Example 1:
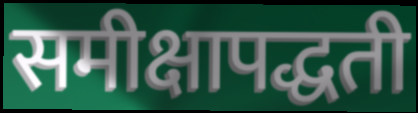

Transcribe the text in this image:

समीक्षापद्धती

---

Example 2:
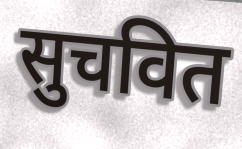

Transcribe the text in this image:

सुचवित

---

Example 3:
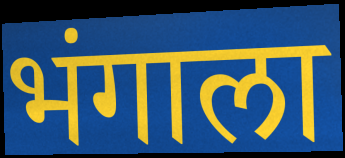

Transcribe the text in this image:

भंगाला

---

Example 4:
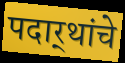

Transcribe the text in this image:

पदार्थांचे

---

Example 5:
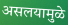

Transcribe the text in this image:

असलयामुळे